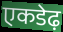
एकडेढ़